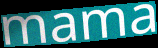
mama